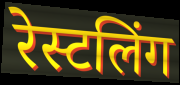
रेस्टलिंग